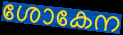
ശോകേന